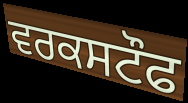
ਵਰਕਸਟੌਫ